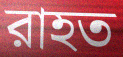
রাহত